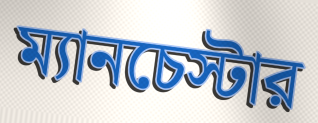
ম্যানচেস্টার